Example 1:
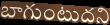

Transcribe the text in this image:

బాగుంటుదని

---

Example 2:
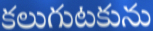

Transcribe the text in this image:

కలుగుటకును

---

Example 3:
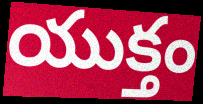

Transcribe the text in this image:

యుక్తం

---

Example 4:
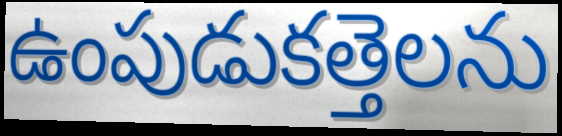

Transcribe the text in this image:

ఉంపుడుకత్తెలను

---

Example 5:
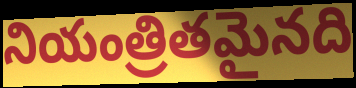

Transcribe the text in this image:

నియంత్రితమైనది